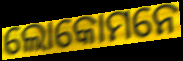
ଲୋକୋମନେ